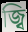
জ্বি